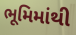
ભૂમિમાંથી